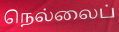
நெல்லைப்